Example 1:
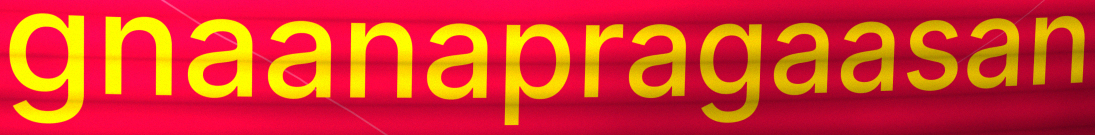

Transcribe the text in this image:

gnaanapragaasan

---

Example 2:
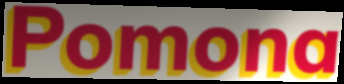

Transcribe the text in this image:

Pomona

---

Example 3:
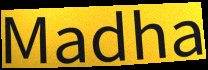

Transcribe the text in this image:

Madha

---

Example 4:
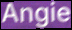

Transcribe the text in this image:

Angie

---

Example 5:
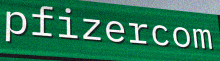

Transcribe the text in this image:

pfizercom